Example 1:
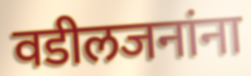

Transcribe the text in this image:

वडीलजनांना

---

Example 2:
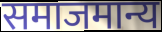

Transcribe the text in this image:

समाजमान्य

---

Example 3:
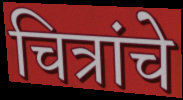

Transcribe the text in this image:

चित्रांचे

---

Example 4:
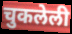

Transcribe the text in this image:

चुकलेली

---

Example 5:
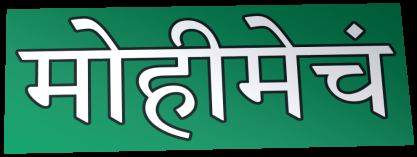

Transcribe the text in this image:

मोहीमेचं